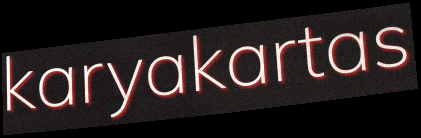
karyakartas